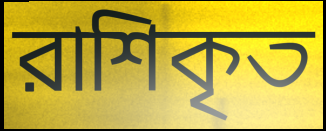
রাশিকৃত